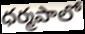
ధర్మపాలో